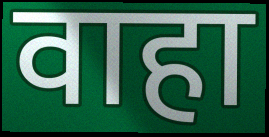
वाहा